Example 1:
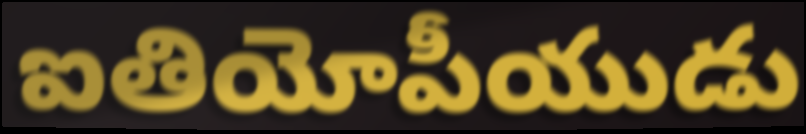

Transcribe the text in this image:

ఐతియోపీయుడు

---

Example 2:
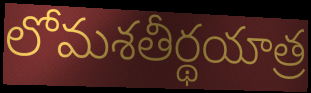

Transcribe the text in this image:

లోమశతీర్థయాత్ర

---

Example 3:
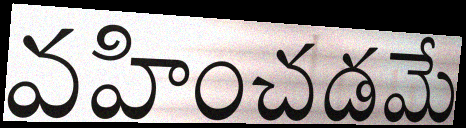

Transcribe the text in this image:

వహించడమే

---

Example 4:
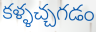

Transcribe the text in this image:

కళ్ళచ్చగడం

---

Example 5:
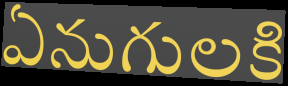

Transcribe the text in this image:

ఏనుగులకి